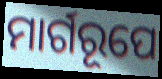
ମାର୍ଗରୂପେ